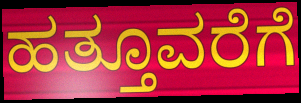
ಹತ್ತೂವರೆಗೆ